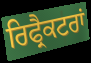
ਰਿਫ੍ਰੈਕਟਰਾਂ